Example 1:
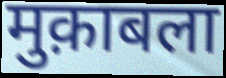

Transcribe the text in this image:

मुक़ाबला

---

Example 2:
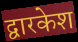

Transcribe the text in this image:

द्वारकेश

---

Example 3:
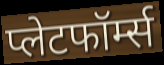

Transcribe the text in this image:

प्लेटफॉर्म्स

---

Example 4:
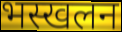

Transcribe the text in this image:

भस्खलन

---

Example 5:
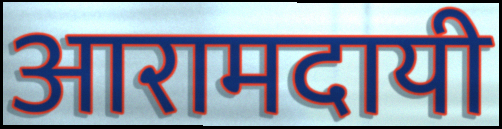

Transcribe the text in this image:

आरामदायी